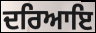
ਦਰਿਆਇ